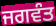
ਜਗਵੰਤ